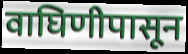
वाघिणीपासून